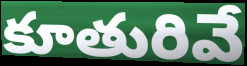
కూతురివే